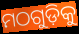
ମଠଗୁଡ଼ିକୁ